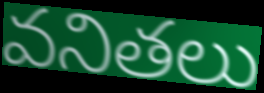
వనితలు